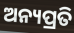
ଅନ୍ୟପ୍ରତି